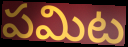
పమిట